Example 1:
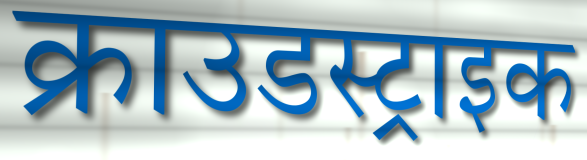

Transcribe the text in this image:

क्राउडस्ट्राइक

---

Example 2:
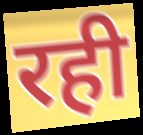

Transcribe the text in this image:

रही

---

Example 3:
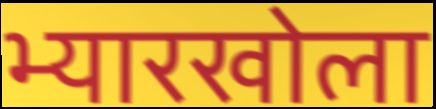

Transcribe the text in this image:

भ्यारखोला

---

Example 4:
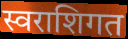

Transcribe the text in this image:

स्वराशिगत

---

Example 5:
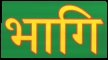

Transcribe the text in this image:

भागि